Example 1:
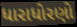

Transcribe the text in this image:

ધારાધોરણો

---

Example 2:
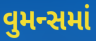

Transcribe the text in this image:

વુમન્સમાં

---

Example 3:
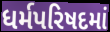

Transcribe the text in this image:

ધર્મપરિષદમાં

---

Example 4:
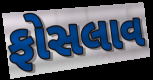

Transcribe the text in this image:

ફોસલાવ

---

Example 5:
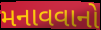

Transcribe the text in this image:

મનાવવાનો